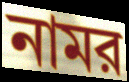
নামর